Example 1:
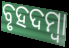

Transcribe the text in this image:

ବୃହଦମ୍ବା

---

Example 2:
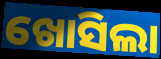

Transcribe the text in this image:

ଖୋସିଲା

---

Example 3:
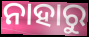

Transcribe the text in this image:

ନାହାରୁ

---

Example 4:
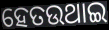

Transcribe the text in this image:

ହେତଉଥାଇ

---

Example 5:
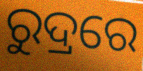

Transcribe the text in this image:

ରୁଦ୍ରରେ